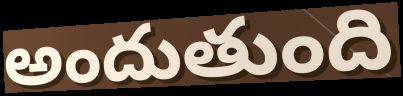
అందుతుంది